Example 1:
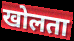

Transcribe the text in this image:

खोलता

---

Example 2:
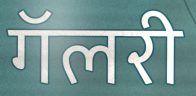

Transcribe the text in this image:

गॅलरी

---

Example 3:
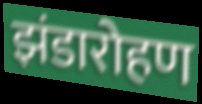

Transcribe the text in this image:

झंडारोहण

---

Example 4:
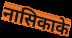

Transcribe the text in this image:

नासिकाके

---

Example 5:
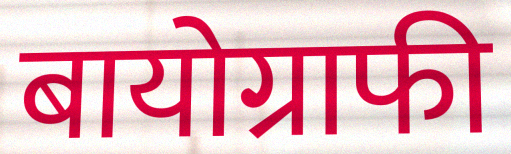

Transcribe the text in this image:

बायोग्राफी